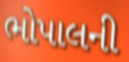
ભોપાલની